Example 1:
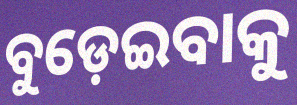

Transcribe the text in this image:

ବୁଡ଼େଇବାକୁ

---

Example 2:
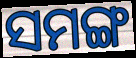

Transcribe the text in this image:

ସମଙ୍ଗ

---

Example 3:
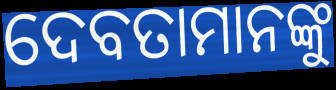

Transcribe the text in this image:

ଦେବତାମାନଙ୍କୁ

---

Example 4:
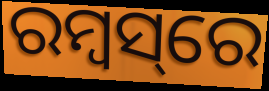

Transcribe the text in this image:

ରମ୍ବସ୍‌ରେ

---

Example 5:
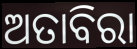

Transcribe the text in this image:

ଅତାବିରା